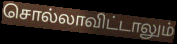
சொல்லாவிட்டாலும்